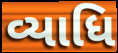
વ્યાધિ